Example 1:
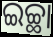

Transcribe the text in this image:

ଇଚ୍ଛା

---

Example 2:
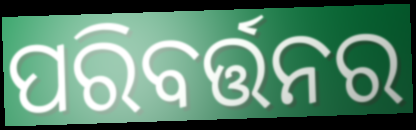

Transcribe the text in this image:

ପରିବର୍ତ୍ତନର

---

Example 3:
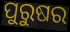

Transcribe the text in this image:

ପୁରୁଷର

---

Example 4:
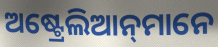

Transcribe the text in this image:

ଅଷ୍ଟ୍ରେଲିଆନ୍‌ମାନେ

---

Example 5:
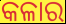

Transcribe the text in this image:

କଳାର